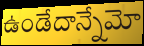
ఉండేదాన్నేమో